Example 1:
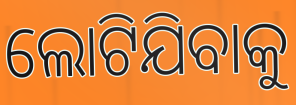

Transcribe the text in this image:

ଲୋଟିଯିବାକୁ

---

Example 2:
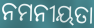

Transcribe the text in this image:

ନମନୀୟତା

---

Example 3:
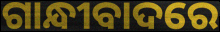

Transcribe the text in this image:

ଗାନ୍ଧୀବାଦରେ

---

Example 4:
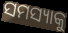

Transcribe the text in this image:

ସମସ୍ଯାକୁ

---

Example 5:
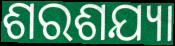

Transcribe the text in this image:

ଶରଶଯ୍ୟା